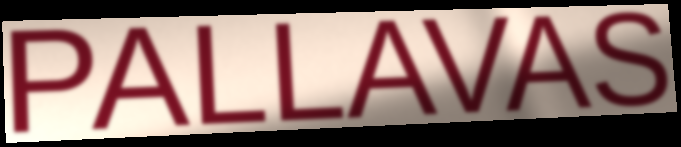
PALLAVAS